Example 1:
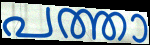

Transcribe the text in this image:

പത്താ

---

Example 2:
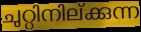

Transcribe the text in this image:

ചുറ്റിനില്ക്കുന്ന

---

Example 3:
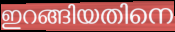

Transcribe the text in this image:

ഇറങ്ങിയതിനെ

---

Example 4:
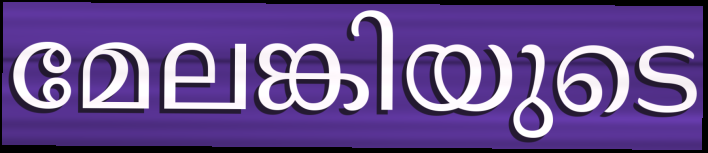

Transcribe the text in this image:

മേലങ്കിയുടെ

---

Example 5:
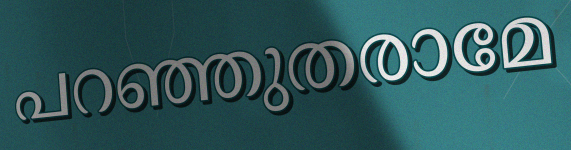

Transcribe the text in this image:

പറഞ്ഞുതരാമേ